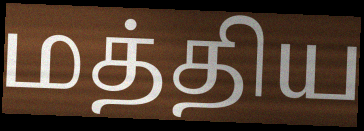
மத்திய